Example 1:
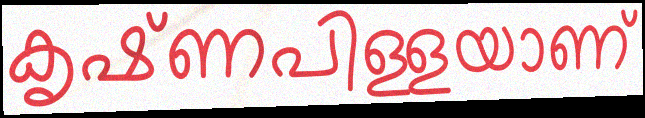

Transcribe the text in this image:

കൃഷ്‌ണപിള്ളയാണ്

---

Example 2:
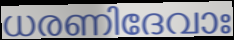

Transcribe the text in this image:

ധരണിദേവാഃ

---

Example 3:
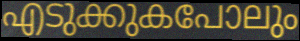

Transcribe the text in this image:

എടുക്കുകപോലും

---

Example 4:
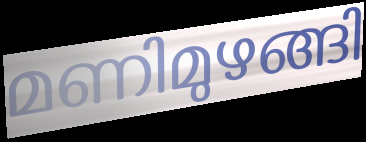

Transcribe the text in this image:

മണിമുഴങ്ങി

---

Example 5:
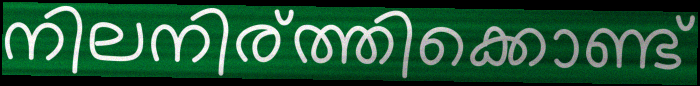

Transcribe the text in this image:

നിലനിര്ത്തിക്കൊണ്ട്